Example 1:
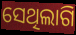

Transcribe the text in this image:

ସେଥିଲାଗି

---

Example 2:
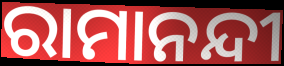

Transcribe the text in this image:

ରାମାନନ୍ଦୀ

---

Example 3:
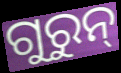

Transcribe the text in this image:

ଗୁରୁନ୍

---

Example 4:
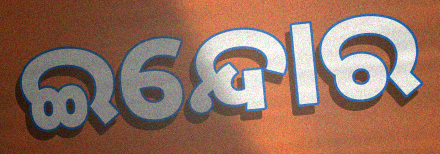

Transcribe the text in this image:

ଇନ୍ଦୋର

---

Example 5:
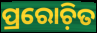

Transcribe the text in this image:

ପ୍ରରୋଚ଼ିତ